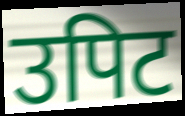
उपिट